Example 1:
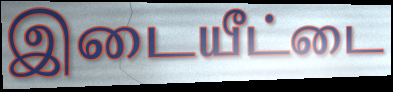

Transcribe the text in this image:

இடையீட்டை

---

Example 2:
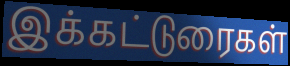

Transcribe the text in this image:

இக்கட்டுரைகள்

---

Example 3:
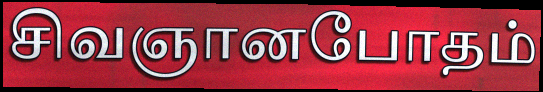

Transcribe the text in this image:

சிவஞானபோதம்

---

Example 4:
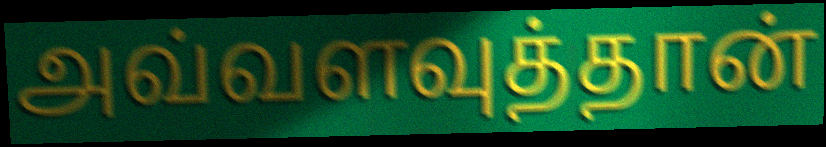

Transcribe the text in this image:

அவ்வளவுத்தான்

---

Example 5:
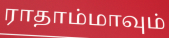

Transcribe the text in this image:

ராதாம்மாவும்